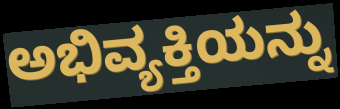
ಅಭಿವ್ಯಕ್ತಿಯನ್ನು